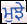
ਮੁਝੇ